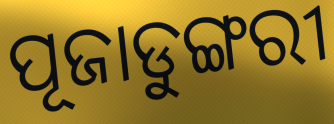
ପୂଜାଡୁଙ୍ଗରୀ